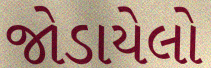
જોડાયેલો